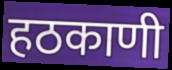
हठकाणी